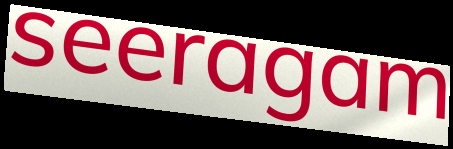
seeragam